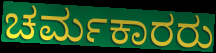
ಚರ್ಮಕಾರರು